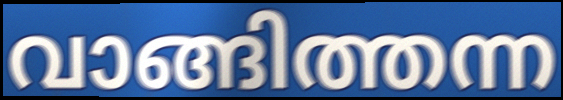
വാങ്ങിത്തന്ന